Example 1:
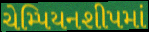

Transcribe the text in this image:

ચેમ્પિયનશીપમાં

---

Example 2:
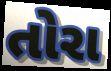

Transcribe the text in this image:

તોરા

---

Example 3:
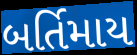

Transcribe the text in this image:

બર્તિમાય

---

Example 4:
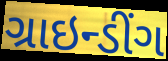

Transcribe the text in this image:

ગ્રાઇન્ડીંગ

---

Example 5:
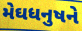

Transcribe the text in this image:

મેઘધનુષને